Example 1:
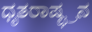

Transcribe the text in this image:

ಧೃತರಾಷ್ಟ್ರನ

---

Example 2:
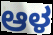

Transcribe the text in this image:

ಆಳ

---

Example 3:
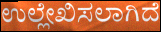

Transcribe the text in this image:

ಉಲ್ಲೇಖಿಸಲಾಗಿದೆ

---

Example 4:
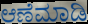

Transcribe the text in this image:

ಆಣೆಮಾಡಿ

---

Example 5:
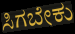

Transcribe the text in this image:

ಸಿಗಬೇಕು